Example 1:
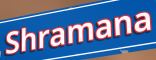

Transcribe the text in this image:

Shramana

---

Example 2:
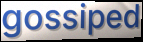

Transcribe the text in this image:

gossiped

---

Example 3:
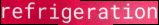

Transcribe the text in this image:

refrigeration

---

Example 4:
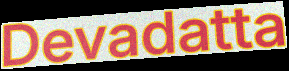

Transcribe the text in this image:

Devadatta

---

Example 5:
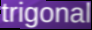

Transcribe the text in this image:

trigonal